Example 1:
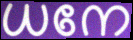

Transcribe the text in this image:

ധനേ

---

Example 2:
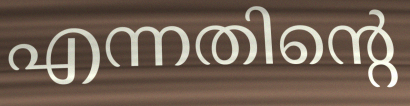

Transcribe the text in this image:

എന്നതിന്റെ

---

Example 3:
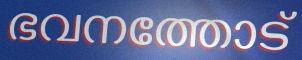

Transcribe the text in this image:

ഭവനത്തോട്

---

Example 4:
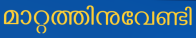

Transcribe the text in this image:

മാറ്റത്തിനുവേണ്ടി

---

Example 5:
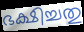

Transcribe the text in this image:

ഭക്ഷിച്ചതു